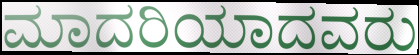
ಮಾದರಿಯಾದವರು